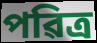
পৱিত্ৰ